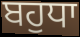
ਬਹੁਧਾ